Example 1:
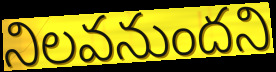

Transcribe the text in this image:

నిలవనుందని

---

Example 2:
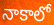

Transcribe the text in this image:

నాకాలో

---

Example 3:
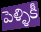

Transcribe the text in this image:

పెళ్ళికీ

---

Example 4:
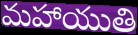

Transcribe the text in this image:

మహాయుతి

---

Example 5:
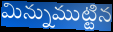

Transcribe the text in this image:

మిన్నుముట్టిన